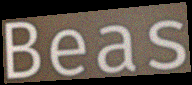
Beas